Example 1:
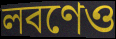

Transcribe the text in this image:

লবণেও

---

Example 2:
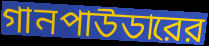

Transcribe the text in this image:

গানপাউডারের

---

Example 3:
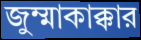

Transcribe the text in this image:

জুম্মাকাক্কার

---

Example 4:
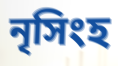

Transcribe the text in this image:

নৃসিংহ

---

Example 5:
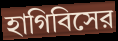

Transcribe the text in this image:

হাগিবিসের